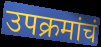
उपक्रमांचं